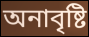
অনাবৃষ্টি